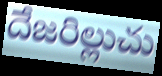
దేజరిల్లుచు